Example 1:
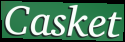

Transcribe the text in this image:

Casket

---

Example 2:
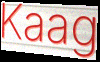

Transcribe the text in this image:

Kaag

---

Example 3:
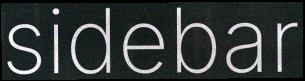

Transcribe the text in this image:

sidebar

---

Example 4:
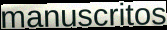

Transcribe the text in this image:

manuscritos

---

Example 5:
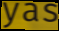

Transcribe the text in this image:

yas